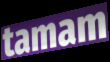
tamam